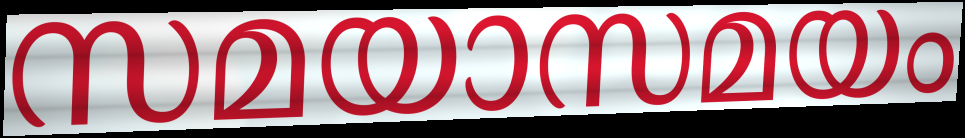
സമയാസമയം